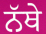
ਨੱਥੇ